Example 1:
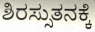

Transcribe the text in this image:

ಶಿರಸ್ಸುತನಕ್ಕೆ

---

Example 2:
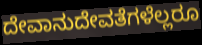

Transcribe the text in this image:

ದೇವಾನುದೇವತೆಗಳೆಲ್ಲರೂ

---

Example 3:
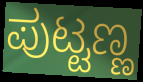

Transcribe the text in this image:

ಪುಟ್ಟಣ್ಣ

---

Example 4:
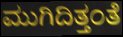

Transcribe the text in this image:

ಮುಗಿದಿತ್ತಂತೆ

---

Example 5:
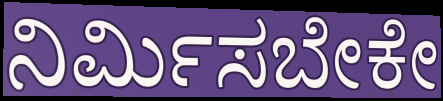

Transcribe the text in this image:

ನಿರ್ಮಿಸಬೇಕೇ